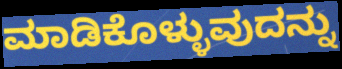
ಮಾಡಿಕೊಳ್ಳುವುದನ್ನು